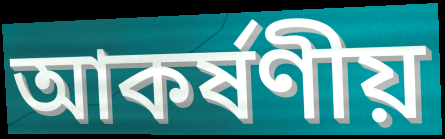
আকৰ্ষণীয়